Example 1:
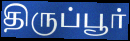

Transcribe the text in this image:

திருப்பூர்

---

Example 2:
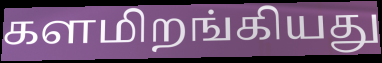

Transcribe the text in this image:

களமிறங்கியது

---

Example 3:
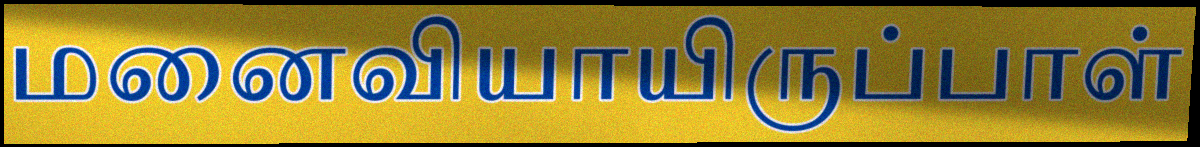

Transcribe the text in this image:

மனைவியாயிருப்பாள்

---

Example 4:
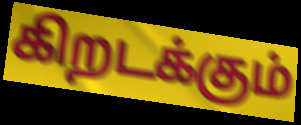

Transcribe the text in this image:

கிறடக்கும்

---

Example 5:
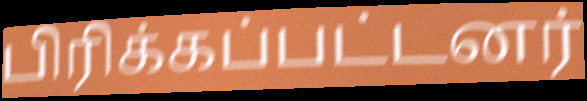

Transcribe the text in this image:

பிரிக்கப்பட்டனர்